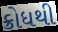
ક્રોધથી